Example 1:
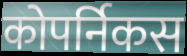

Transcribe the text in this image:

कोपर्निकस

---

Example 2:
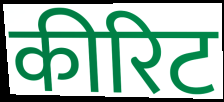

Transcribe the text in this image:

कीरिट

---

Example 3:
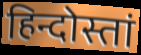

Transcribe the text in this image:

हिन्दोस्तां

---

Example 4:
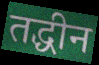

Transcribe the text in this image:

तद्धीन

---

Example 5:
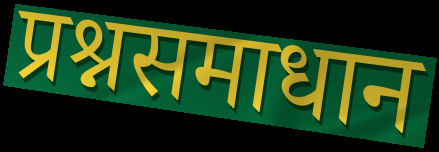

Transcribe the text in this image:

प्रश्नसमाधान